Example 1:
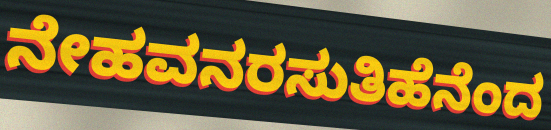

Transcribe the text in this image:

ನೇಹವನರಸುತಿಹೆನೆಂದ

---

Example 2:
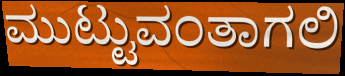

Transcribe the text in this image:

ಮುಟ್ಟುವಂತಾಗಲಿ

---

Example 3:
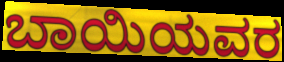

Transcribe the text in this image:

ಬಾಯಿಯವರ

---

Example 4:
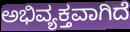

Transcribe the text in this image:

ಅಭಿವ್ಯಕ್ತವಾಗಿದೆ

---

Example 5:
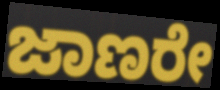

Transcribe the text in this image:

ಜಾಣರೇ